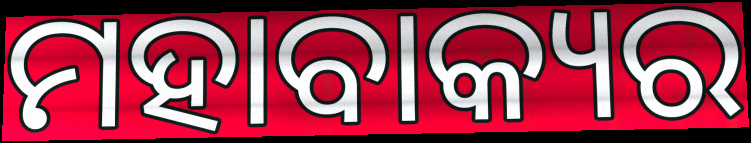
ମହାବାକ୍ୟର